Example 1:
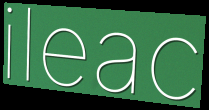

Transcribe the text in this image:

ileac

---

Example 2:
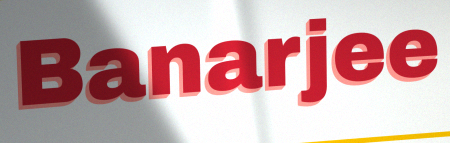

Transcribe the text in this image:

Banarjee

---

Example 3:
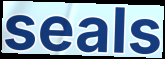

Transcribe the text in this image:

seals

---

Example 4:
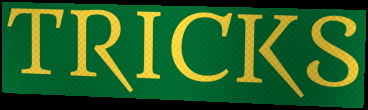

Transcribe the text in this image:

TRICKS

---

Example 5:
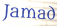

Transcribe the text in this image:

Jamad